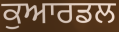
ਕੁਆਰਡਲ